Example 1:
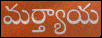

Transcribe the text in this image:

మర్త్యాయ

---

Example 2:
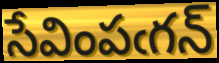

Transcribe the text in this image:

సేవింపఁగన్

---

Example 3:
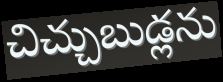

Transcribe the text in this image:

చిచ్చుబుడ్లను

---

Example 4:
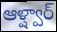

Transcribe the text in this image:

ఆళ్ష్వార్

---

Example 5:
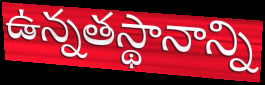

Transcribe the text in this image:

ఉన్నతస్థానాన్ని